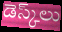
డెస్క్‌లు